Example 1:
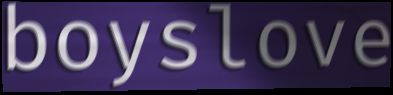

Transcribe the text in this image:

boyslove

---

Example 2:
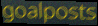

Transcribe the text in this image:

goalposts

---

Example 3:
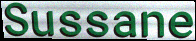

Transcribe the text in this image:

Sussane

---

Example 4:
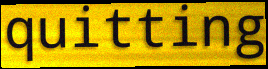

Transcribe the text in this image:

quitting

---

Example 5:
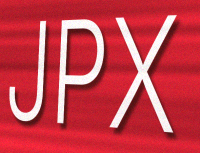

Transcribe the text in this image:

JPX